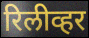
रिलीव्हर